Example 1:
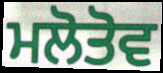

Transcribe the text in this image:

ਮਲੋਤੋਵ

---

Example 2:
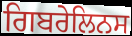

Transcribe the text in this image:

ਗਿਬਰੇਲਿਨਸ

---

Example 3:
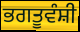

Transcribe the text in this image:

ਭਗਤੂਵੰਸ਼ੀ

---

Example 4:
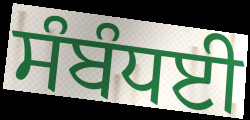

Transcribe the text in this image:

ਸੰਬੰਧਈ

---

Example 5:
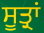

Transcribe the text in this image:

ਸੂਤ੍ਰਾਂ